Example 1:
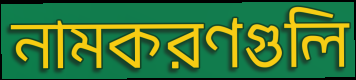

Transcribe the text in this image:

নামকরণগুলি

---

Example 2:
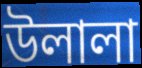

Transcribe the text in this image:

উলালা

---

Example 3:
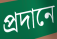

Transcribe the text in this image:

প্রদানে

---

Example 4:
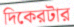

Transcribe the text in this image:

দিকেরটার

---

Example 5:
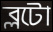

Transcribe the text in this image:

ব্লটো